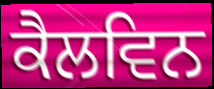
ਕੈਲਵਿਨ